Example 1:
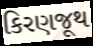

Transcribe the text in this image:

કિરણજૂથ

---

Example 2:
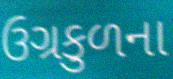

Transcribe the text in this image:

ઉગ્રકુળના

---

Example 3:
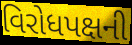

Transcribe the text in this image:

વિરોધપક્ષની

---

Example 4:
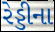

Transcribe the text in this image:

રેડ્ડીના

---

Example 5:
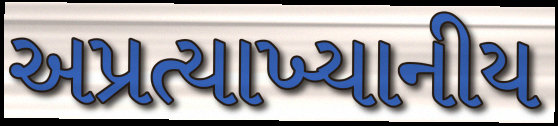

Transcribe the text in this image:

અપ્રત્યાખ્યાનીય